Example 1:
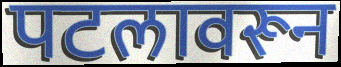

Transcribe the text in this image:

पटलावरून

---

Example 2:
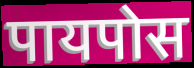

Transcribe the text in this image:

पायपोस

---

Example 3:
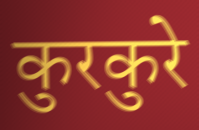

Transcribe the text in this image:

कुरकुरे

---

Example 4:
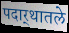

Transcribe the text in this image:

पदार्थातले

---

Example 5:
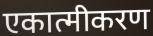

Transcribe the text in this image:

एकात्मीकरण